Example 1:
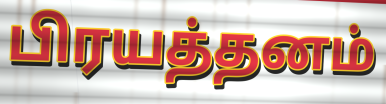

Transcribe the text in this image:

பிரயத்தனம்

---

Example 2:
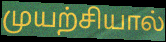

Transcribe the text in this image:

முயற்சியால்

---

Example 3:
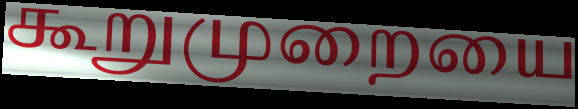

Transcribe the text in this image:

கூறுமுறையை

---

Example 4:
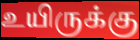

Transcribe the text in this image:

உயிருக்கு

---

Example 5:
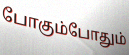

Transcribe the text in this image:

போகும்போதும்